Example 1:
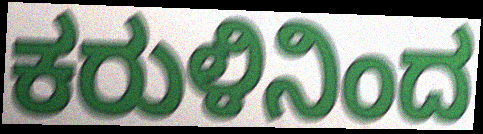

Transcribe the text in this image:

ಕರುಳಿನಿಂದ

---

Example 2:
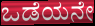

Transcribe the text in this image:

ಒಡೆಯನೇ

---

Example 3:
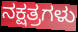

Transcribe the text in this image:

ನಕ್ಷತ್ರಗಳು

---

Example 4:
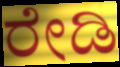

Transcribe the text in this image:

ರೇಡಿ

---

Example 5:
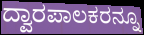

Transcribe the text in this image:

ದ್ವಾರಪಾಲಕರನ್ನೂ